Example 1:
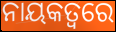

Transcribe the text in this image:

ନାୟକତ୍ବରେ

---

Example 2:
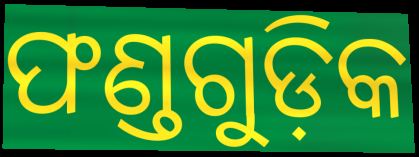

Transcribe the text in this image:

ଫଣ୍ଡଗୁଡ଼ିକ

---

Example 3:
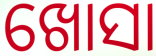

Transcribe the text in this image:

ଖୋସା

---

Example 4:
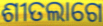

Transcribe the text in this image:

ଶୀତଲାଗେ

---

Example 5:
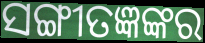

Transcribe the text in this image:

ସଙ୍ଗୀତଜ୍ଞଙ୍କର